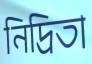
নিদ্রিতা